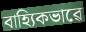
বাহ্যিকভাৱে